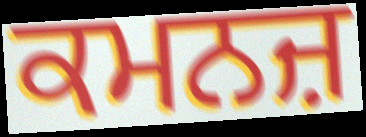
ਕਮਨਜ਼